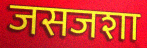
जसजशा